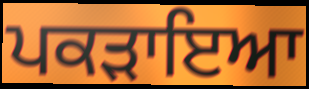
ਪਕੜਾਇਆ